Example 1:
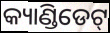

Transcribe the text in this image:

କ୍ୟାଣ୍ଡିଡେଟ୍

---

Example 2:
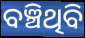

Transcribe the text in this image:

ବଞ୍ଚିଥିବି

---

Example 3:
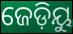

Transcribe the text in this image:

ଜେଡ଼ିୟୁ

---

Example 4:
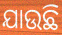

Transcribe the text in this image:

ଯାଉଛି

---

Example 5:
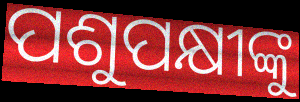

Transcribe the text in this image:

ପଶୁପକ୍ଷୀଙ୍କୁ